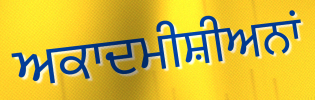
ਅਕਾਦਮੀਸ਼ੀਅਨਾਂ